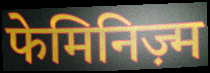
फेमिनिज़्म